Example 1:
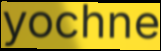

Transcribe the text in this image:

yochne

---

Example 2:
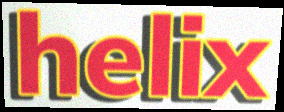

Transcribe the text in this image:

helix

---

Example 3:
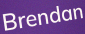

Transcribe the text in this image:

Brendan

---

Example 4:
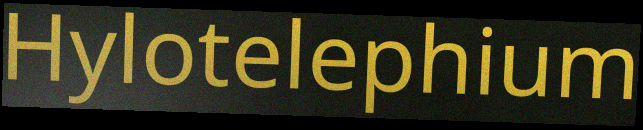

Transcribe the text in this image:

Hylotelephium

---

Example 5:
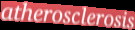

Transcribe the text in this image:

atherosclerosis